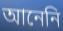
আনেনি